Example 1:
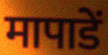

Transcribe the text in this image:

मापाडें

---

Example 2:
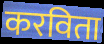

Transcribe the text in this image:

करविता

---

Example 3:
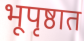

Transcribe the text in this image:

भूपृष्ठात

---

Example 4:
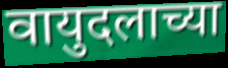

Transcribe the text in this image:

वायुदलाच्या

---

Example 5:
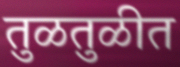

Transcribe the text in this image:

तुळतुळीत